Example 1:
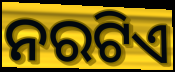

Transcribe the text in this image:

ନରଟିଏ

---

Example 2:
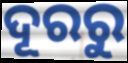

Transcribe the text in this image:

ଦୂରରୁ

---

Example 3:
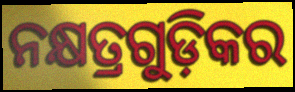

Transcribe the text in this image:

ନକ୍ଷତ୍ରଗୁଡ଼ିକର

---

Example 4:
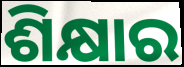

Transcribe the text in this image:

ଶିକ୍ଷାର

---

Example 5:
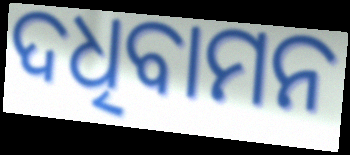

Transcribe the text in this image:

ଦଧିବାମନ